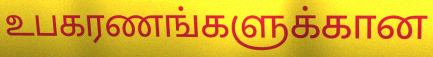
உபகரணங்களுக்கான